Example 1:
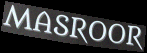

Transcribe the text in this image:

MASROOR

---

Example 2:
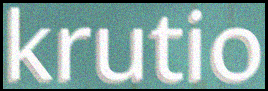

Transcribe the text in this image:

krutio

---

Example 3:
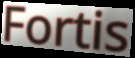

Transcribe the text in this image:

Fortis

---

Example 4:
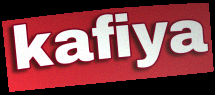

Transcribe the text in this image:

kafiya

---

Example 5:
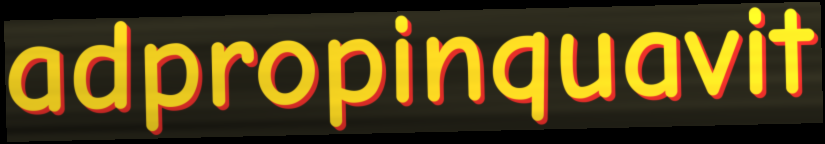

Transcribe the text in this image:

adpropinquavit